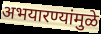
अभयारण्यांमुळे